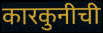
कारकुनीची